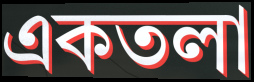
একতলা